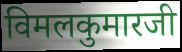
विमलकुमारजी